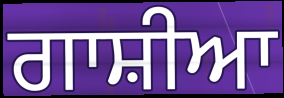
ਗਾਸ਼ੀਆ